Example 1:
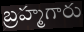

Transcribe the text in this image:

బ్రహ్మగారు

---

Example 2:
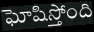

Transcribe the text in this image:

ఘోషిస్తోంది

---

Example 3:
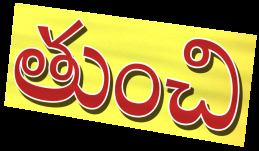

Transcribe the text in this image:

తుంచి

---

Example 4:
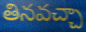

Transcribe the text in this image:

తినవచ్చా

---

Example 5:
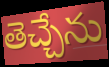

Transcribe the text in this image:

తెచ్చేను